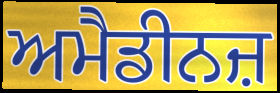
ਅਮੈਡੀਨਜ਼